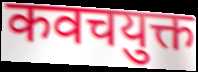
कवचयुक्त